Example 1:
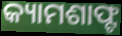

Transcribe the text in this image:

କ୍ୟାମଶାଫ୍ଟ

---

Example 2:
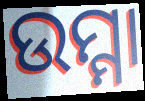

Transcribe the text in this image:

ଉମ୍ମା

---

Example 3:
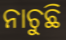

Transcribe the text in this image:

ନାଚୁଛି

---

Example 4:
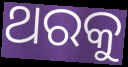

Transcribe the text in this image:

ଥରକୁ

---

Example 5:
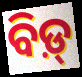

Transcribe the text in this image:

ବିଡ଼୍